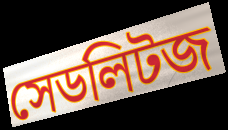
সেডলিটজ